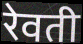
रेवती